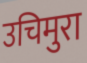
उचिमुरा